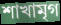
শাখামৃগ